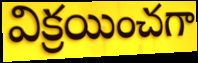
విక్రయించగా